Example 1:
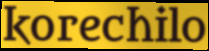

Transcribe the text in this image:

korechilo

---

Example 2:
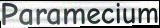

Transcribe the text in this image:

Paramecium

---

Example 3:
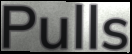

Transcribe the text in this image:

Pulls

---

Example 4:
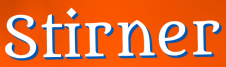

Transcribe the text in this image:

Stirner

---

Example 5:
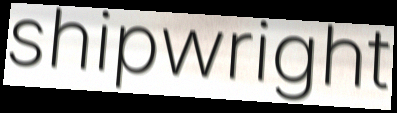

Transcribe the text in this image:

shipwright